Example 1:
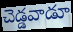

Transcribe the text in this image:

చెడ్డవాడూ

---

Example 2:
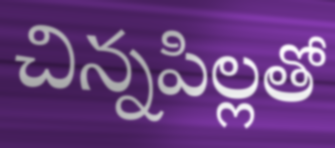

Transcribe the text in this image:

చిన్నపిల్లతో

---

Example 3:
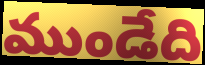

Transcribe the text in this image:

ముండేది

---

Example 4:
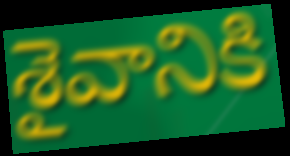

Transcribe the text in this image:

శైవానికి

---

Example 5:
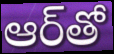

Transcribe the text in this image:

ఆర్‌తో